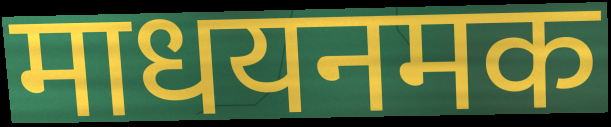
माधयनमक